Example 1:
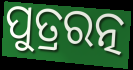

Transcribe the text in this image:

ପୁତ୍ରରତ୍ନ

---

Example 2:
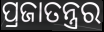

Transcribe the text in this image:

ପ୍ରଜାତନ୍ତ୍ରର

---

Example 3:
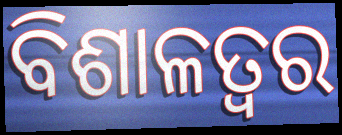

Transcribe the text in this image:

ବିଶାଳତ୍ୱର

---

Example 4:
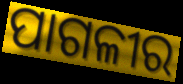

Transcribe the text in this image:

ପାଗଳୀର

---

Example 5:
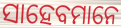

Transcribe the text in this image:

ସାହେବମାନେ